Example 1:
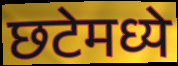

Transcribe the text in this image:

छटेमध्ये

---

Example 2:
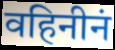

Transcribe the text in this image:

वहिनीनं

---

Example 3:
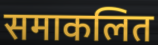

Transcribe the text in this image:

समाकलित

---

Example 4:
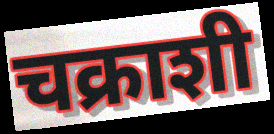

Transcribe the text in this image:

चक्राशी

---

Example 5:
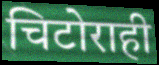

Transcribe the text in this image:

चिटोराही